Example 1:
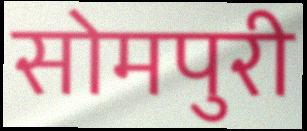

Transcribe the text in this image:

सोमपुरी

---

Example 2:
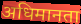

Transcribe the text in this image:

अधिमानता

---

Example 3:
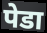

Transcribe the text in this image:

पेडा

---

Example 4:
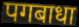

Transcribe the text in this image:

पगबाधा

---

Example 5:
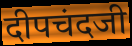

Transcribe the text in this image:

दीपचंदजी